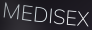
MEDISEX